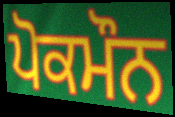
ਪੋਕਮੌਨ